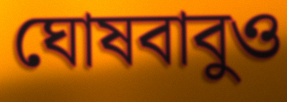
ঘোষবাবুও